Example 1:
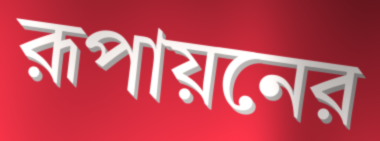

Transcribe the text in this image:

রূপায়নের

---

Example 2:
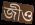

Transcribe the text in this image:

জীও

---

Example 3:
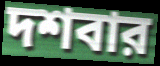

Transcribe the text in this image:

দশবার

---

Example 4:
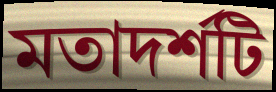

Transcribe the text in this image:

মতাদর্শটি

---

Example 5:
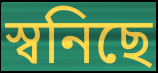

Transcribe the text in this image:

স্বনিছে